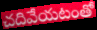
చదివేయటంతో